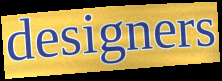
designers